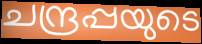
ചന്ദ്രപ്പയുടെ